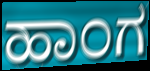
ಹಾಂಗ